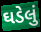
ઘડેલું